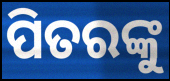
ପିତରଙ୍କୁ